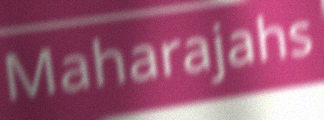
Maharajahs